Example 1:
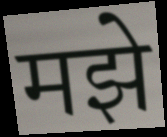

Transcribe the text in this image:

मझे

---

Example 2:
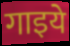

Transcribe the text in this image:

गाइये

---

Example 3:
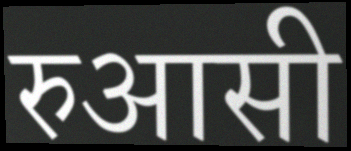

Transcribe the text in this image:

रुआसी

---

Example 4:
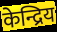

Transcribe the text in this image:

केन्द्रिय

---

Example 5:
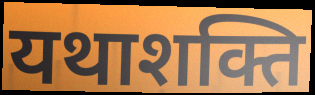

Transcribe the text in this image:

यथाशक्ति